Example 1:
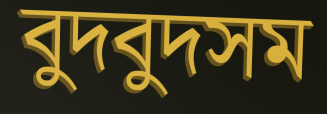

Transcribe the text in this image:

বুদবুদসম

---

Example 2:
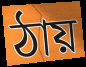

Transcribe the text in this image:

ঠায়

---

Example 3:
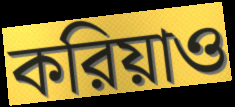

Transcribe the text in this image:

করিয়াও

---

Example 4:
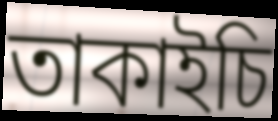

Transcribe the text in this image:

তাকাইচি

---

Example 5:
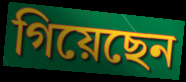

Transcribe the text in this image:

গিয়েছেন